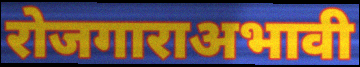
रोजगाराअभावी